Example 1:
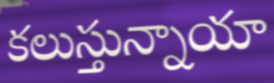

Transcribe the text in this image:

కలుస్తున్నాయా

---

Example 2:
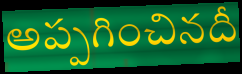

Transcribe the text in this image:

అప్పగించినదీ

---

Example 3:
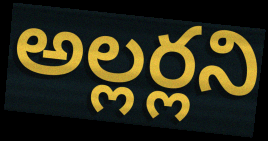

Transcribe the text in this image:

అల్లర్లని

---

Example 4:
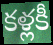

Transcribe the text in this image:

కళ్లకీ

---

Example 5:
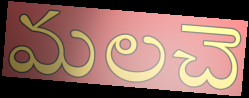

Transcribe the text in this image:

మలచె